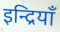
इन्द्रियाँ